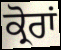
ਕ੍ਰੋਰਾਂ